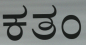
ಕತಂ